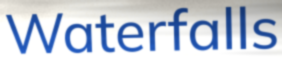
Waterfalls